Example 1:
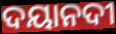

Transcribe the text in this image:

ଦୟାନଦୀ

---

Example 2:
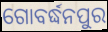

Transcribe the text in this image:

ଗୋବର୍ଦ୍ଧନପୁର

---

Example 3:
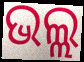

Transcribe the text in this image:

ଭଲ୍ଲ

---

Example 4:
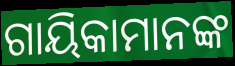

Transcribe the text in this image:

ଗାୟିକାମାନଙ୍କ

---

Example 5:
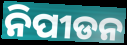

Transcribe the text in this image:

ନିପୀଡନ